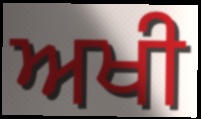
ਅਖੀ